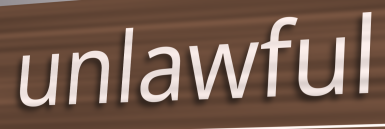
unlawful